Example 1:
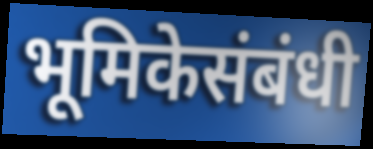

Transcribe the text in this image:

भूमिकेसंबंधी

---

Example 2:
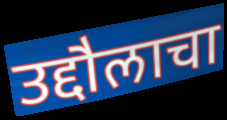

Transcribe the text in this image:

उद्दौलाचा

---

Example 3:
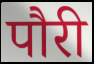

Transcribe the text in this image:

पौरी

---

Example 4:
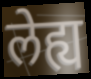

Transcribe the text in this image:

लेह्य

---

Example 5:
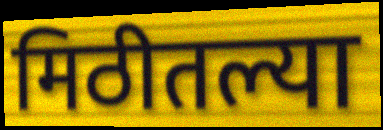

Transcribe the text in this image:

मिठीतल्या